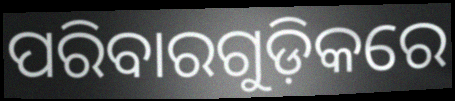
ପରିବାରଗୁଡ଼ିକରେ